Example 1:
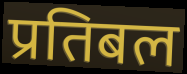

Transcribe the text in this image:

प्रतिबल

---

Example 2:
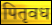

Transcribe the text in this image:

पितृवध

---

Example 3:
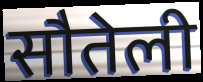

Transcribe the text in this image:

सौतेली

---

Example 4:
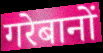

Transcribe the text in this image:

गरेबानों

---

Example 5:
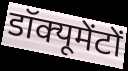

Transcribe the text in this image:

डॉक्यूमेंटों